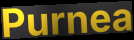
Purnea